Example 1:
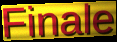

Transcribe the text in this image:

Finale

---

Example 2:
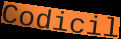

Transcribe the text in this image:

Codicil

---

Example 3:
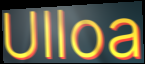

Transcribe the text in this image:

Ulloa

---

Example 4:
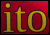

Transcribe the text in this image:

ito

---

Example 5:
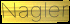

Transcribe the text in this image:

Nagler